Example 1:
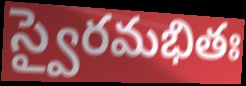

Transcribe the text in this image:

స్వైరమభితః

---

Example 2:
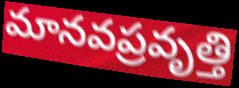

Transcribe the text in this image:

మానవప్రవృత్తి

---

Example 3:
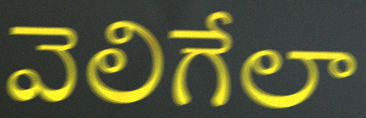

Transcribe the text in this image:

వెలిగేలా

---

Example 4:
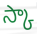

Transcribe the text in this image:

స్కా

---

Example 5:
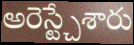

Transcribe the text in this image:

అరెస్ట్చేశారు